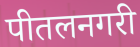
पीतलनगरी